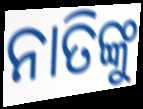
ନାତିଙ୍କୁ